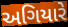
અગિયારે